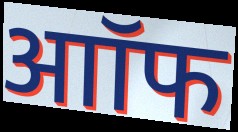
आॉफ